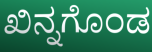
ಖಿನ್ನಗೊಂಡ